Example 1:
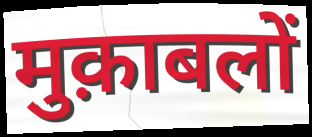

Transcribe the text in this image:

मुक़ाबलों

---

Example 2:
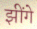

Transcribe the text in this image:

झींगे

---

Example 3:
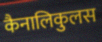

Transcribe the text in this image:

कैनालिकुलस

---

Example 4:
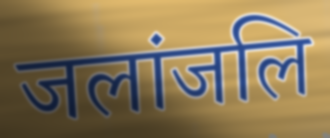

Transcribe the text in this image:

जलांजलि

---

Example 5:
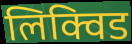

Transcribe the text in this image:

लिक्विड